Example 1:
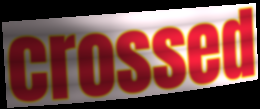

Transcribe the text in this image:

crossed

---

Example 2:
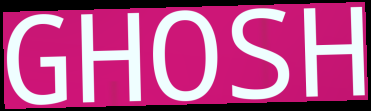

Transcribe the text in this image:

GHOSH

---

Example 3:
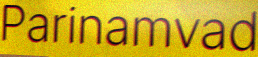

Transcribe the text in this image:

Parinamvad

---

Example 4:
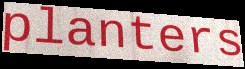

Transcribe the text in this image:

planters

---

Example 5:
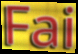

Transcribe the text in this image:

Fai